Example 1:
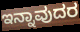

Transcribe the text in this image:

ಇನ್ನಾವುದರ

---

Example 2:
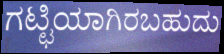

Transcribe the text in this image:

ಗಟ್ಟಿಯಾಗಿರಬಹುದು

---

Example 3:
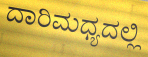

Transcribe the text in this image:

ದಾರಿಮಧ್ಯದಲ್ಲಿ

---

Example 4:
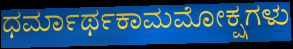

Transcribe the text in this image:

ಧರ್ಮಾರ್ಥಕಾಮಮೋಕ್ಷಗಳು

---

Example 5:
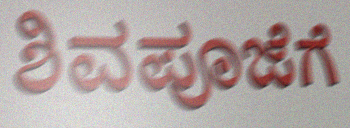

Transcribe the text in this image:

ಶಿವಪೂಜೆಗೆ